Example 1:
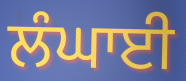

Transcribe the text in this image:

ਲੰਘਾਈ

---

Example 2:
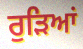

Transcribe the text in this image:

ਰੁੜਿਆਂ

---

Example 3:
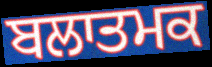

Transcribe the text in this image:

ਬਲਾਤਮਕ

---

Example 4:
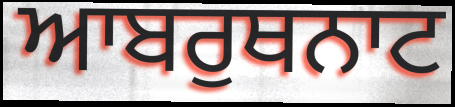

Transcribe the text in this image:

ਆਬਰੁਥਨਾਟ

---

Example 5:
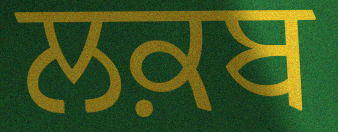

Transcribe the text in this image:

ਲਕ਼ਬ